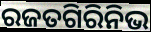
ରଜତଗିରିନିଭ